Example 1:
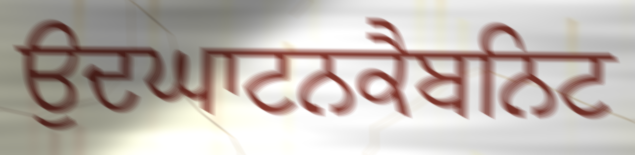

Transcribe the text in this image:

ਉਦਘਾਟਨਕੈਬਨਿਟ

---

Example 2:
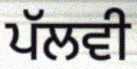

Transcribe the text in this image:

ਪੱਲਵੀ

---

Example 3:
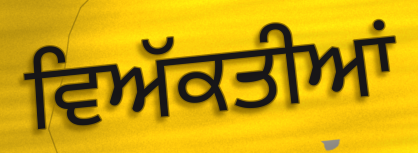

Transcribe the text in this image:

ਵਿਅੱਕਤੀਆਂ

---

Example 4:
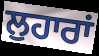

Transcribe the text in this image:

ਲੁਹਾਰਾਂ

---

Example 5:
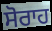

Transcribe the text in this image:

ਸੋਰਾਹ